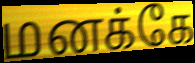
மனக்கே